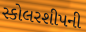
સ્કોલરશીપની